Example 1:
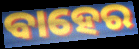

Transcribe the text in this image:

ବାହେର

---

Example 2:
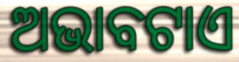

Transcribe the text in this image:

ଅଭାବଟାଏ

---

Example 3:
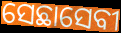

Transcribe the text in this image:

ସେଛାସେବୀ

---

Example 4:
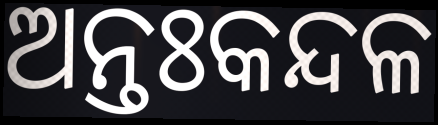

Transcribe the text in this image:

ଅନ୍ତଃକନ୍ଦଳ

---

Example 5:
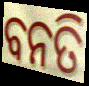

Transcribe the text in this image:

ବନତି